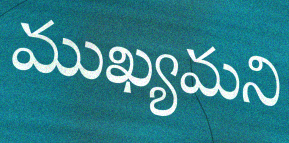
ముఖ్యమని